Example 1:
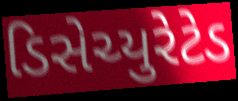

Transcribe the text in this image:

ડિસેચ્યુરેટેડ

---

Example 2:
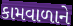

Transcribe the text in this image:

કામવાળાને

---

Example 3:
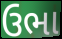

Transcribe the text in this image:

ઉભા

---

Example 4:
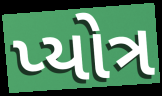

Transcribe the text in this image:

પ્યોત્ર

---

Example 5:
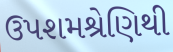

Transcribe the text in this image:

ઉપશમશ્રેણિથી